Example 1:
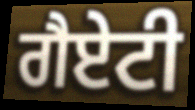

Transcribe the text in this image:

ਗੈਏਟੀ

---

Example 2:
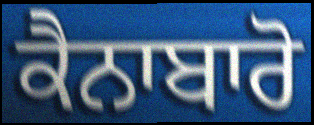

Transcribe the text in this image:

ਕੈਨਾਬਾਰੋ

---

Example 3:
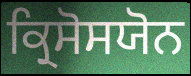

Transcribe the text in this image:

ਕ੍ਰਿਸੋਸਯੋਨ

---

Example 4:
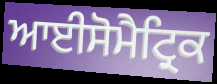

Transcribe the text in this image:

ਆਈਸੋਮੈਟ੍ਰਿਕ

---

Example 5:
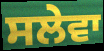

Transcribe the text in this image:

ਸਲੇਵਾ